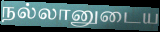
நல்லானுடைய